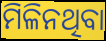
ମିଳିନଥିବା